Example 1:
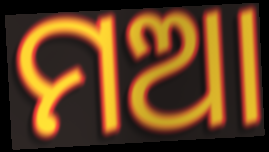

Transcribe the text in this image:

ମଆ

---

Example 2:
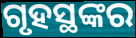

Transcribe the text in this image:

ଗୃହସ୍ଥଙ୍କର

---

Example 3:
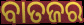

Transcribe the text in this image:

ବାତଜର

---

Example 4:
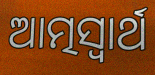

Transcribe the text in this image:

ଆତ୍ମସ୍ଵାର୍ଥ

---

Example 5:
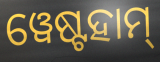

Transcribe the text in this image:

ୱେଷ୍ଟହାମ୍